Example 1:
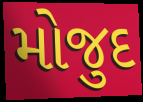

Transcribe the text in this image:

મોજુદ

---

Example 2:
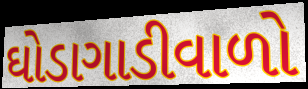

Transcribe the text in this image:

ઘોડાગાડીવાળો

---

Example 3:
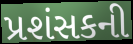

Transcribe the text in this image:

પ્રશંસકની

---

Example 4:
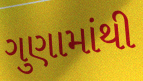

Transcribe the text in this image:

ગુણામાંથી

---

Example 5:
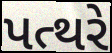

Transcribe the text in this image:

પત્થરે